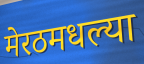
मेरठमधल्या